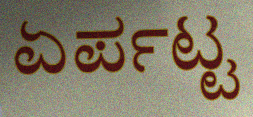
ಏರ್ಪಟ್ಟ